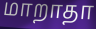
மாறாதா